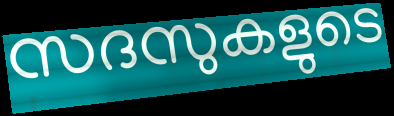
സദസുകളുടെ